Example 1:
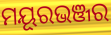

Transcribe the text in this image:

ମୟୂରଭଞ୍ଜର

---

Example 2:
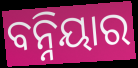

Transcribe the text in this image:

ବନ୍ନିୟାର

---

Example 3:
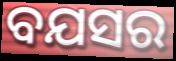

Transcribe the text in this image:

ବଯସର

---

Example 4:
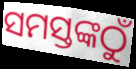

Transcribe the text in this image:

ସମସ୍ତଙ୍କଠୁଁ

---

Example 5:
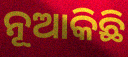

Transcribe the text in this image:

ନୂଆକିଛି